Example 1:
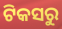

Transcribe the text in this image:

ଟିକସରୁ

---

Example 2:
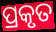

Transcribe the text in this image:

ପ୍ରକୃତ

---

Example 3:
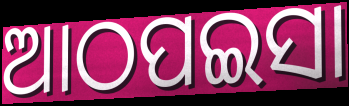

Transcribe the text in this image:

ଆଠପଇସା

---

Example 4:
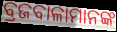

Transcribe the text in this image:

ବ୍ରଜବାଳାମାନଙ୍କ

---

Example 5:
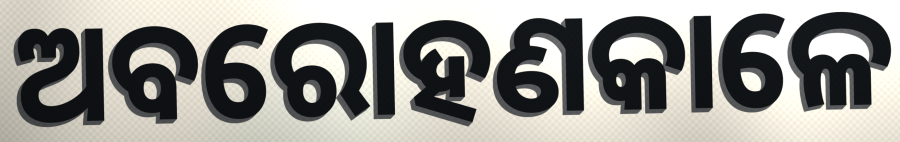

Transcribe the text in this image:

ଅବରୋହଣକାଳେ